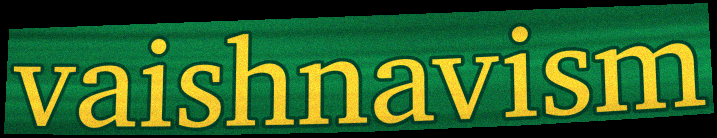
vaishnavism